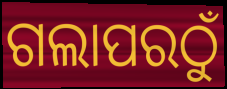
ଗଲାପରଠୁଁ